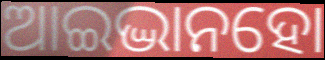
ଆଇଦ୍ଭାନହୋ